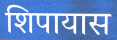
शिपायास